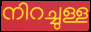
നിറച്ചുള്ള